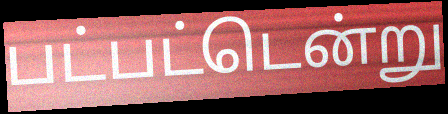
பட்பட்டென்று